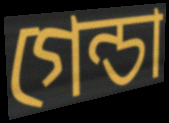
গেন্ডা